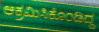
ಆಕ್ರಮಿಸಿಕೊಂಡಿದ್ದ